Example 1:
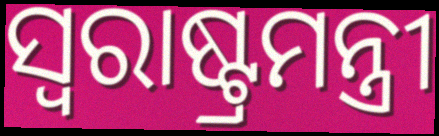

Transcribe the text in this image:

ସ୍ବରାଷ୍ଟ୍ରମନ୍ତ୍ରୀ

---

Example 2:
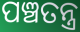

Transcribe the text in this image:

ପଞ୍ଚତନ୍ତ୍ର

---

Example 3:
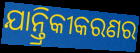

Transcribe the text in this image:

ଯାନ୍ତ୍ରିକୀକରଣର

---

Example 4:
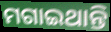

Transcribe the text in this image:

ମଗାଇଥାନ୍ତି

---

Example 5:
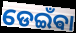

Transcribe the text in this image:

ଡେଇଁଵା